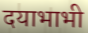
दयाभाभी